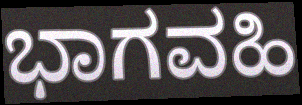
ಭಾಗವಹಿ